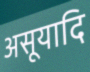
असूयादि